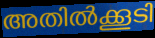
അതിൽക്കൂടി